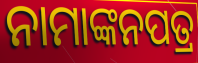
ନାମାଙ୍କନପତ୍ର